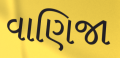
વાણિજા